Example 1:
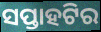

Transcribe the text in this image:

ସପ୍ତାହଟିର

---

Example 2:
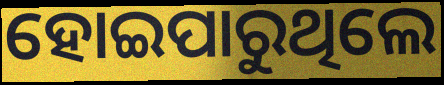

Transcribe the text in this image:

ହୋଇପାରୁଥିଲେ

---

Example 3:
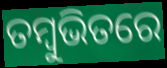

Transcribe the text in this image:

ତମ୍ବୁଭିତରେ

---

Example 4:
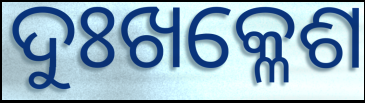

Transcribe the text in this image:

ଦୁଃଖକ୍ଳେଶ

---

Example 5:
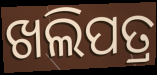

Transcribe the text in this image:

ଖଲିପତ୍ର